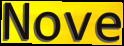
Nove